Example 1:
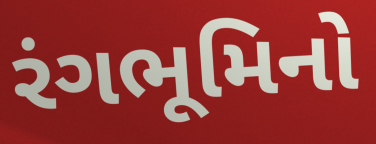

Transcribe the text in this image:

રંગભૂમિનો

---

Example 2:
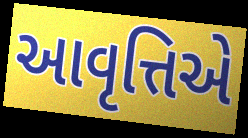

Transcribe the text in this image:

આવૃત્તિએ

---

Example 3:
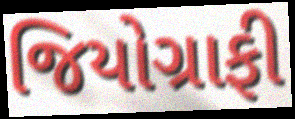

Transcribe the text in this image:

જિયોગ્રાફી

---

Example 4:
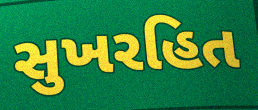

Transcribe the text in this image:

સુખરહિત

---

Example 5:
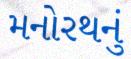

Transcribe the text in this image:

મનોરથનું